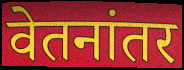
वेतनांतर